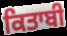
ਕਿਤਾਬੀ